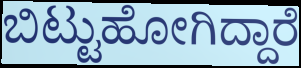
ಬಿಟ್ಟುಹೋಗಿದ್ದಾರೆ